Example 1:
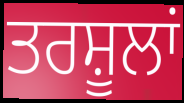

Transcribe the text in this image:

ਤਰਸ਼ੂਲਾਂ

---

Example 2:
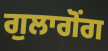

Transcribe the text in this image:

ਗੁਲਾਗੋਂਗ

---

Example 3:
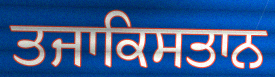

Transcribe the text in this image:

ਤਜਾਕਿਸਤਾਨ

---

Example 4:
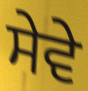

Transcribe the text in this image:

ਸੇਵੇ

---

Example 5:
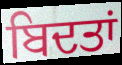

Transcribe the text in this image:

ਬਿਦਤਾਂ